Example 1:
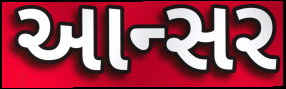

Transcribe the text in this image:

આન્સર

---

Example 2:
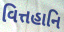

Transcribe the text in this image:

વિત્તહાનિ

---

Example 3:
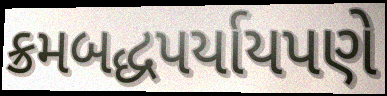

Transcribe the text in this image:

ક્રમબદ્ધપર્યાયપણે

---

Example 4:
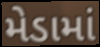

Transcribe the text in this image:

મેડામાં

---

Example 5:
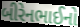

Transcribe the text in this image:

બીરેનભાઈનો